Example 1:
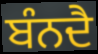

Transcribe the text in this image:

ਬੰਨਦੈ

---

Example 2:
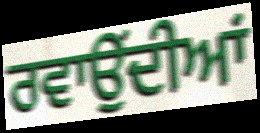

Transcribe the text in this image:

ਰਵਾਉਂਦੀਆਂ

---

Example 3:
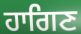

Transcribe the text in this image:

ਹਾਗਿਣ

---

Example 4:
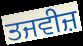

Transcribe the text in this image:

ਤਜਵੀਜ਼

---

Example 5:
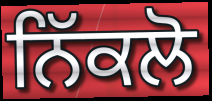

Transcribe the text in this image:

ਨਿੱਕਲੋ